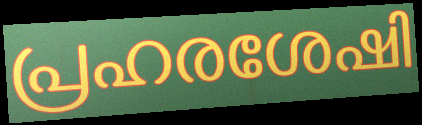
പ്രഹരശേഷി